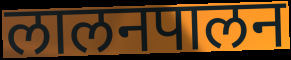
लालनपालन